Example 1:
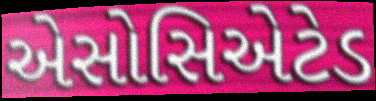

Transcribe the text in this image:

એસોસિએટેડ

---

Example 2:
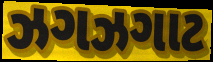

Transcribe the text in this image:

ઝગઝગાટ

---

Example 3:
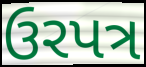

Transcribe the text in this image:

ઉરપત્ર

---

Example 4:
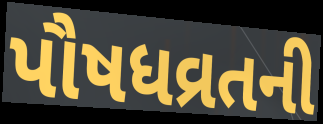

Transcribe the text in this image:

પૌષધવ્રતની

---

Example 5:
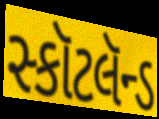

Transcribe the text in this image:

સ્કૉટલૅન્ડ